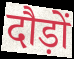
दौड़ों